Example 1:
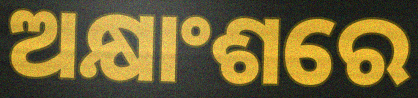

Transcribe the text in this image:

ଅକ୍ଷାଂଶରେ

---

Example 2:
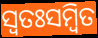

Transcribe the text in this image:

ସ୍ୱତଃସମ୍ବିତ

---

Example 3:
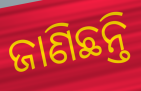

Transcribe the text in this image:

ଜାଣିଛନ୍ତି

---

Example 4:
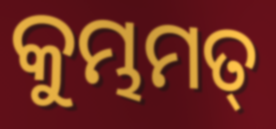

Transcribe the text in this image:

କୁମ୍ଭମତ୍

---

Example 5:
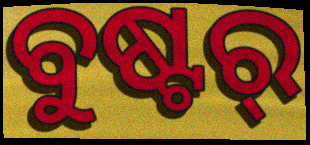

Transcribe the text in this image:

ବୁଷ୍ଟର୍